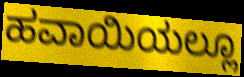
ಹವಾಯಿಯಲ್ಲೂ